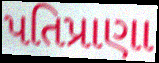
પતિપ્રાણા